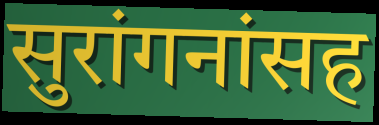
सुरांगनांसह